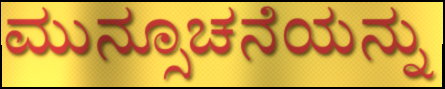
ಮುನ್ಸೂಚನೆಯನ್ನು